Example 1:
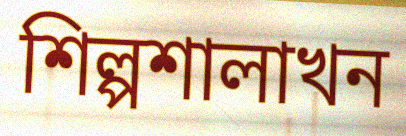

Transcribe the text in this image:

শিল্পশালাখন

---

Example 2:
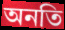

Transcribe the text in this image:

অনতি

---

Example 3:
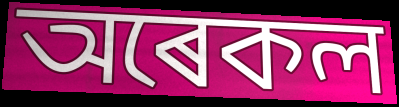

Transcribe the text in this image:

অৰেকল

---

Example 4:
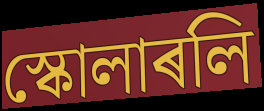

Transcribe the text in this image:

স্কোলাৰলি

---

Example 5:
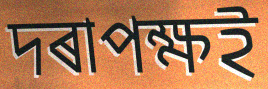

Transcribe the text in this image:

দৰাপক্ষই